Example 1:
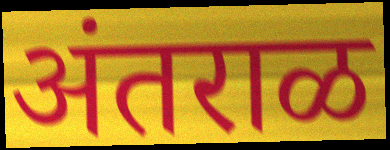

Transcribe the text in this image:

अंतराळ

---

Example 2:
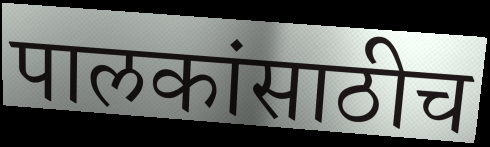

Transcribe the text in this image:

पालकांसाठीच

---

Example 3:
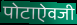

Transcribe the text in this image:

पोटाऐवजी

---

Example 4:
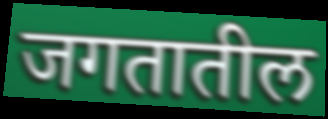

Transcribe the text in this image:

जगतातील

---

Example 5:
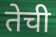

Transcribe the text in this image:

तेची